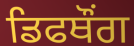
ਡਿਫਥੌਂਗ